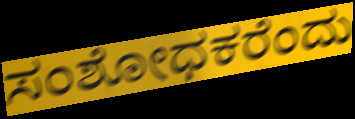
ಸಂಶೋಧಕರೆಂದು